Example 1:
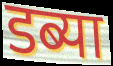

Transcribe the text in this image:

डब्या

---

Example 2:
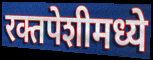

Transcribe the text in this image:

रक्तपेशीमध्ये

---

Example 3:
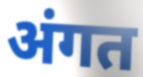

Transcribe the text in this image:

अंगत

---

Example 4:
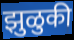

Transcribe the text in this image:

झुळुकी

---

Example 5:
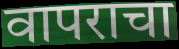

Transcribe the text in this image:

वापराचा